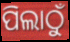
ପିଲାଠୁଁ